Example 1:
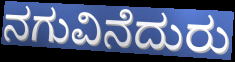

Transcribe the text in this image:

ನಗುವಿನೆದುರು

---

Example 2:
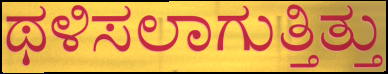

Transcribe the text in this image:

ಥಳಿಸಲಾಗುತ್ತಿತ್ತು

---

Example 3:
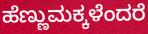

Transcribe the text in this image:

ಹೆಣ್ಣುಮಕ್ಕಳೆಂದರೆ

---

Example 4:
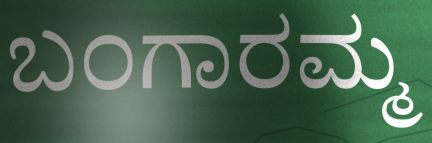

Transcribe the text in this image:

ಬಂಗಾರಮ್ಮ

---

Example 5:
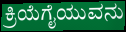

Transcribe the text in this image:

ಕ್ರಿಯೆಗೈಯುವನು